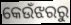
କେଉଁଝରରୁ